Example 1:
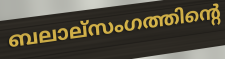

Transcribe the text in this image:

ബലാല്സംഗത്തിന്റെ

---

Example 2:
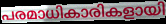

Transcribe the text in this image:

പരമാധികാരികളായി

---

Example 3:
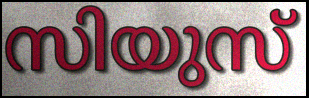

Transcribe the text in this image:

സിയുസ്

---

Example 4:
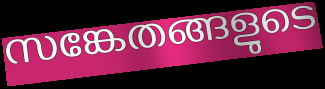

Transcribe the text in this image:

സങ്കേതങ്ങളുടെ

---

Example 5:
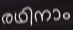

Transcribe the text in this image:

രഥിനാം